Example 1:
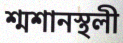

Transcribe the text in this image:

শ্মশানস্থলী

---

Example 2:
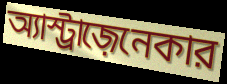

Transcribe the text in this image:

অ্যাস্ট্রাজ়েনেকার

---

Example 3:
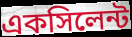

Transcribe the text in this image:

একসিলেন্ট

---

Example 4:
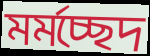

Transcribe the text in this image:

মর্মচ্ছেদ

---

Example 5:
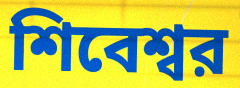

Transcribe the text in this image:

শিবেশ্বর